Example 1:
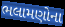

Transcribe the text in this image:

ભલામણોના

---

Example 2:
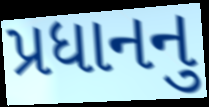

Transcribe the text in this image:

પ્રધાનનુ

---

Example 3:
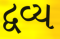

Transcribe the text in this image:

દ્વવ્ય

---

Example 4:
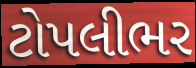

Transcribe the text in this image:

ટોપલીભર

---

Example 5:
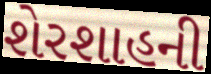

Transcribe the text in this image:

શેરશાહની